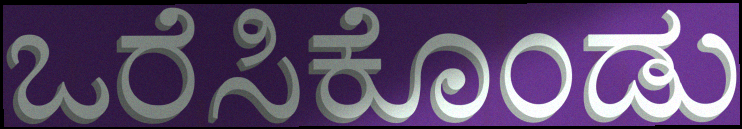
ಒರೆಸಿಕೊಂಡು